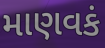
માણવકં